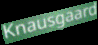
Knausgaard